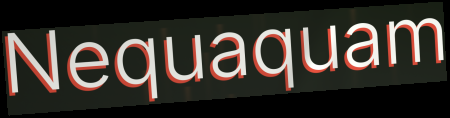
Nequaquam